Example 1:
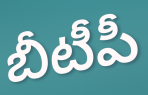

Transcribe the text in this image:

బీటీపీ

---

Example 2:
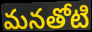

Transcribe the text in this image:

మనతోటి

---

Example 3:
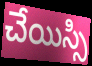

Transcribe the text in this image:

చేయిస్సి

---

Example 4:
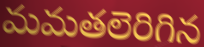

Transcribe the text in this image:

మమతలెరిగిన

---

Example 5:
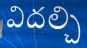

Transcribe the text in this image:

విదల్చి